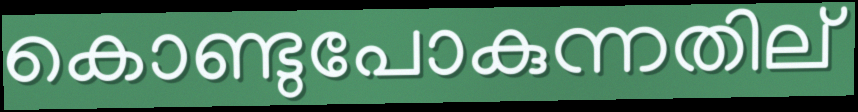
കൊണ്ടുപോകുന്നതില്